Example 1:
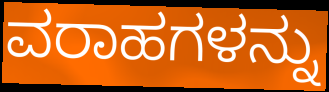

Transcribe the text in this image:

ವರಾಹಗಳನ್ನು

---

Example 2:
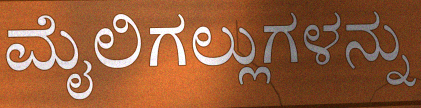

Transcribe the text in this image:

ಮೈಲಿಗಲ್ಲುಗಳನ್ನು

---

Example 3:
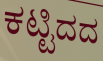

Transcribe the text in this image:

ಕಟ್ಟಿದದ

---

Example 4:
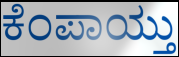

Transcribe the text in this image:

ಕೆಂಪಾಯ್ತು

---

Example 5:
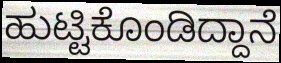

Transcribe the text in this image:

ಹುಟ್ಟಿಕೊಂಡಿದ್ದಾನೆ